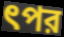
ৎপর